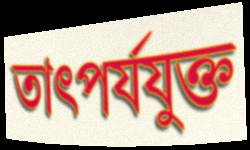
তাৎপর্যযুক্ত